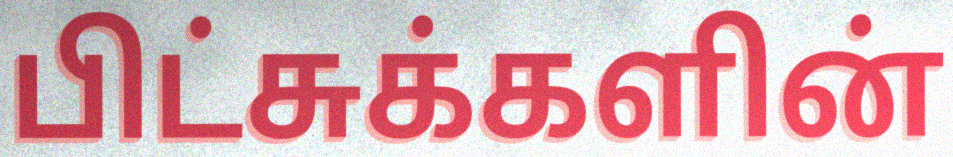
பிட்சுக்களின்